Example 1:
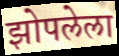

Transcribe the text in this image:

झोपलेला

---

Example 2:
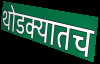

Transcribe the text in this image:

थोडक्यातच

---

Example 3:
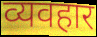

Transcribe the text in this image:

व्यवहार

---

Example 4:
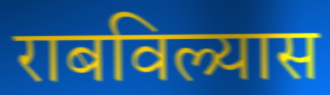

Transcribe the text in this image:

राबविल्यास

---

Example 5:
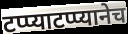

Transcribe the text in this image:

टप्प्याटप्प्यानेच